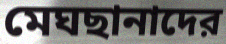
মেঘছানাদের